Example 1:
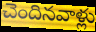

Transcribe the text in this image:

చెందినవాళ్లు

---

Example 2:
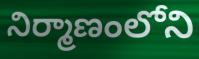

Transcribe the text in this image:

నిర్మాణంలోని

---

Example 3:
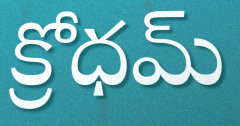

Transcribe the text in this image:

క్రోధమ్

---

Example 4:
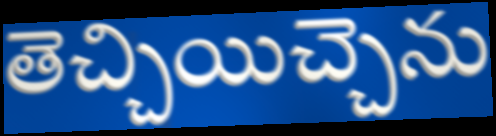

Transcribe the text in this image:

తెచ్చియిచ్చెను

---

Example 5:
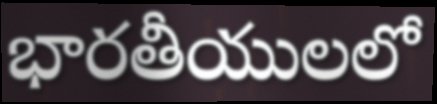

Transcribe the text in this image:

భారతీయులలో